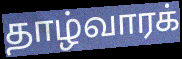
தாழ்வாரக்